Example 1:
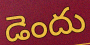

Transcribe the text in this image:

డెందు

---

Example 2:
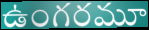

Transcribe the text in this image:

ఉంగరమూ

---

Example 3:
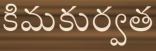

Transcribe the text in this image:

కిమకుర్వత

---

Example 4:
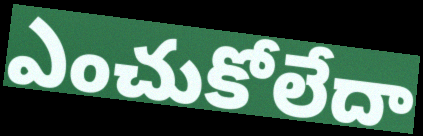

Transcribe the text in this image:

ఎంచుకోలేదా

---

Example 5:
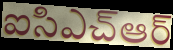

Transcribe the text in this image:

ఐసిఎచ్ఆర్